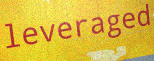
leveraged